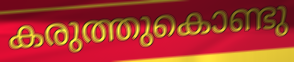
കരുത്തുകൊണ്ടു